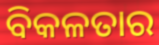
ବିକଳତାର